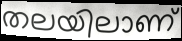
തലയിലാണ്